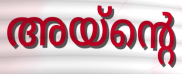
അയ്ന്റെ